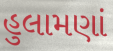
હુલામણાં